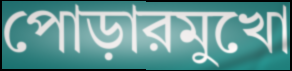
পোড়ারমুখো